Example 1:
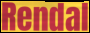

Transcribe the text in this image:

Rendal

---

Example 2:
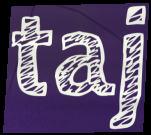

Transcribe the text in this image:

taj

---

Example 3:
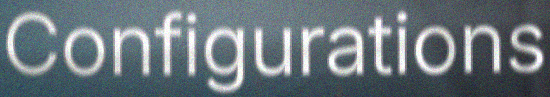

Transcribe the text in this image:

Configurations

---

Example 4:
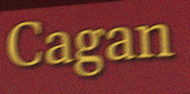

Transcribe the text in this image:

Cagan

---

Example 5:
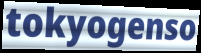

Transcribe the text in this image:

tokyogenso